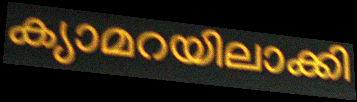
ക്യാമറയിലാക്കി